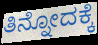
ತಿನ್ನೋದಕ್ಕೆ